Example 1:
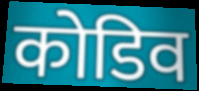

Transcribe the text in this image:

कोडिव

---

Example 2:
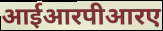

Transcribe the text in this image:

आईआरपीआरए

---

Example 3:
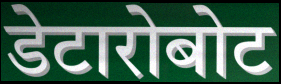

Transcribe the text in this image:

डेटारोबोट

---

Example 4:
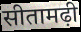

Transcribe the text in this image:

सीतामढ़ी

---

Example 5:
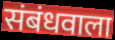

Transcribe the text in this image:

संबंधवाला